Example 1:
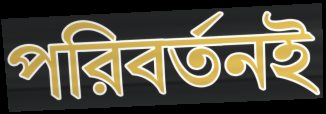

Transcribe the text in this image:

পরিবর্তনই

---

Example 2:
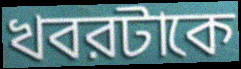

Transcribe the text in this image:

খবরটাকে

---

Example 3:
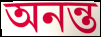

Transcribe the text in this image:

অনন্ত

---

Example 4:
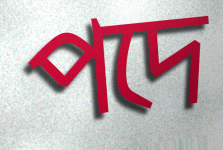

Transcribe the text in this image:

পদে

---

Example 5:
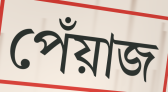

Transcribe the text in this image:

পেঁয়াজ